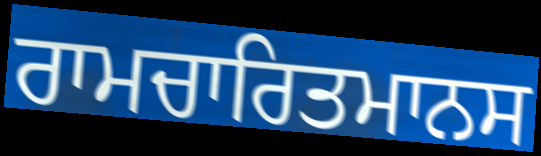
ਰਾਮਚਾਰਿਤਮਾਨਸ